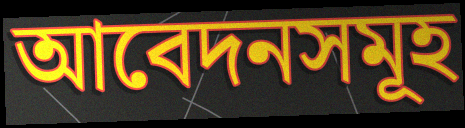
আবেদনসমূহ